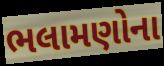
ભલામણોના